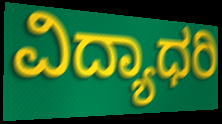
ವಿದ್ಯಾಧರಿ